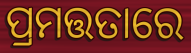
ପ୍ରମତ୍ତତାରେ